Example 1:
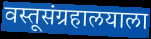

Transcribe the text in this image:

वस्तूसंग्रहालयाला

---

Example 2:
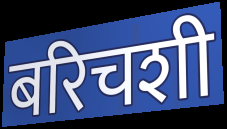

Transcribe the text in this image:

बरिचशी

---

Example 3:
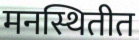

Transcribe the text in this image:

मनस्थितीत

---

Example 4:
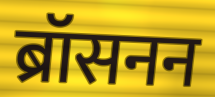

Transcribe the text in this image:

ब्रॉसनन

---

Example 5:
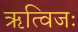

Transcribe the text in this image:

ऋत्विजः